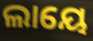
ଲାୟେ